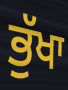
ਭੁੱਖਾ